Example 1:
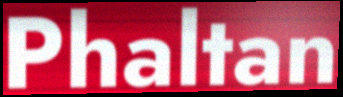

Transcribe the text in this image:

Phaltan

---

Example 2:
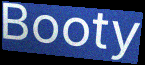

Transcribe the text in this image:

Booty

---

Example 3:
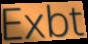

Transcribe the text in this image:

Exbt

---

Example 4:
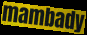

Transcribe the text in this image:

mambady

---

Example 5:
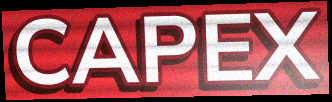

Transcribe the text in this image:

CAPEX